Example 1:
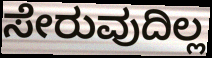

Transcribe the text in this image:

ಸೇರುವುದಿಲ್ಲ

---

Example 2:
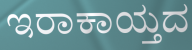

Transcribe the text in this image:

ಇರಾಕಾಯ್ತದ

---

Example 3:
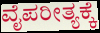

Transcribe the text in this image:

ವೈಪರೀತ್ಯಕ್ಕೆ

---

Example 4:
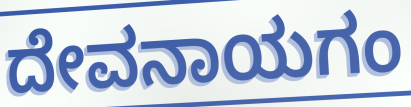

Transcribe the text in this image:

ದೇವನಾಯಗಂ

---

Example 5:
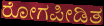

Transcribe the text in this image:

ರೋಗಪೀಡಿತ